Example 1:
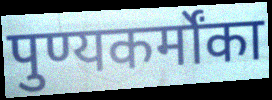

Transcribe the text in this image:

पुण्यकर्मोंका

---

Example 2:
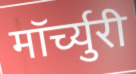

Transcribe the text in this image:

मॉर्च्युरी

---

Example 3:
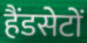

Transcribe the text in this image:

हैंडसेटों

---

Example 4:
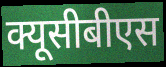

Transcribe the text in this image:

क्यूसीबीएस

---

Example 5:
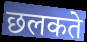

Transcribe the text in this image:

छलकते